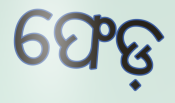
ଫେଡ଼